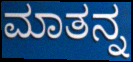
ಮಾತನ್ನ